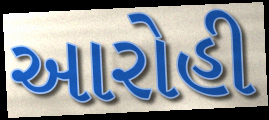
આરોહી